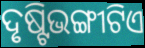
ଦୃଷ୍ଟିଭଙ୍ଗୀଟିଏ